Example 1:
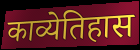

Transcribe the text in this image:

काव्येतिहास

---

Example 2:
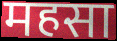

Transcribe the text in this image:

महसा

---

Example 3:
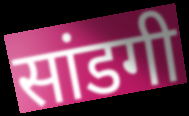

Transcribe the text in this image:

सांडगी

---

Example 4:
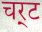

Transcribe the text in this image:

चर्ट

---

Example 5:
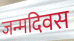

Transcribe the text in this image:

जन्मदिवस